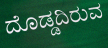
ದೊಡ್ಡದಿರುವ